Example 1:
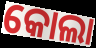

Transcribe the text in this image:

କୋଲା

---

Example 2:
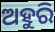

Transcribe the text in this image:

ଅହୁରି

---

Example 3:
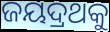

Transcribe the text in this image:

ଜୟଦ୍ରଥକୁ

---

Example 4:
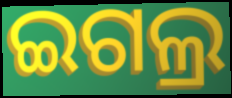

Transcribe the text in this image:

ଇଗଲ୍ର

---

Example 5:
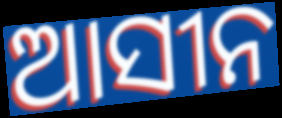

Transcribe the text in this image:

ଆସୀନ